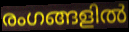
രംഗങ്ങളിൽ